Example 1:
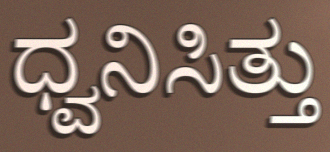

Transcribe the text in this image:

ಧ್ವನಿಸಿತ್ತು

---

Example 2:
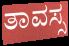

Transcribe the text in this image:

ತಾವಸ್ಸ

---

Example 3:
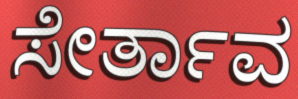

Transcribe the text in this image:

ಸೇರ್ತಾವ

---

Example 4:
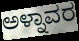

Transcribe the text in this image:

ಅಳ್ನಾವರ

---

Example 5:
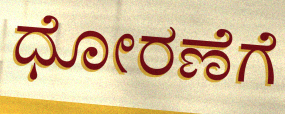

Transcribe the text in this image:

ಧೋರಣೆಗೆ